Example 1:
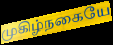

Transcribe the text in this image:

முகிழ்நகையே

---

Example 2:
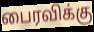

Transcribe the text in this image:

பைரவிக்கு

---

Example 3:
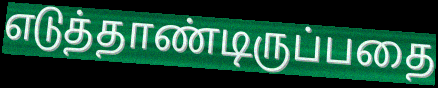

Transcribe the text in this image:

எடுத்தாண்டிருப்பதை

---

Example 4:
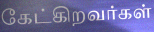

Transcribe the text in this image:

கேட்கிறவர்கள்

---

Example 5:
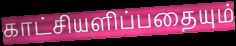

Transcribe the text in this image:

காட்சியளிப்பதையும்